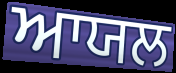
ਆਯਲ